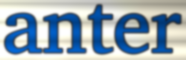
anter